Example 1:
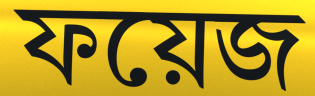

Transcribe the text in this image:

ফয়েজ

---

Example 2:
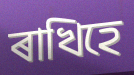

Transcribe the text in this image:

ৰাখিহে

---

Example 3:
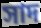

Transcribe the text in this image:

সাদ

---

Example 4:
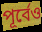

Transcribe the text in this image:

পূৰ্বেও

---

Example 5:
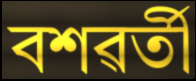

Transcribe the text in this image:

বশৱৰ্তী